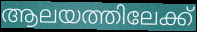
ആലയത്തിലേക്ക്